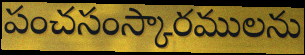
పంచసంస్కారములను